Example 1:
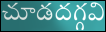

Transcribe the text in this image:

చూడదగ్గవి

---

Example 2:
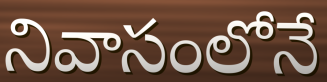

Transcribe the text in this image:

నివాసంలోనే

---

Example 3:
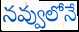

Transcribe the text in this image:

నవ్వులోనే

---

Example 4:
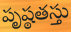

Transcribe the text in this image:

పృష్ఠతస్తు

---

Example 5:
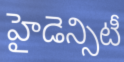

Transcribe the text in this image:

హైడెన్సిటీ